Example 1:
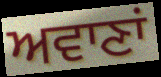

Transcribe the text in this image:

ਅਵਾਣਾਂ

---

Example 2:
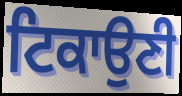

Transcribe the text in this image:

ਟਿਕਾਉਣੀ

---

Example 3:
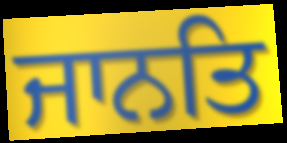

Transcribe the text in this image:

ਜਾਨਤਿ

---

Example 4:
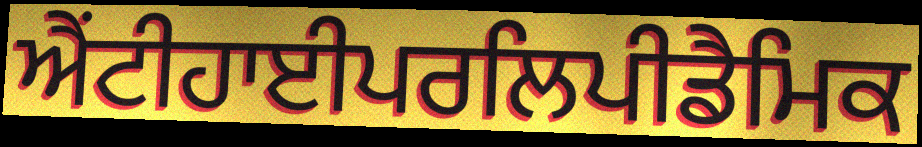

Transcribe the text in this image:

ਐਂਟੀਹਾਈਪਰਲਿਪੀਡੈਮਿਕ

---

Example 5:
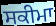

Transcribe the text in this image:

ਸਕੀਮਾ